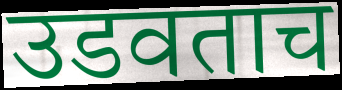
उडवताच